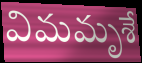
విమమృశే